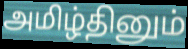
அமிழ்தினும்